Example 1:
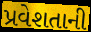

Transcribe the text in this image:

પ્રવેશતાની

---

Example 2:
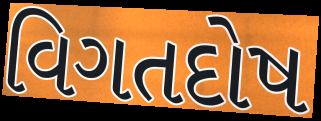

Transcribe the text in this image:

વિગતદોષ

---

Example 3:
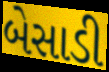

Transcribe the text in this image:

બેસાડી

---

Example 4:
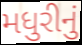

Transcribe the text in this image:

મધુરીનું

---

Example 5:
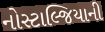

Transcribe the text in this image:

નોસ્ટાલ્જિયાની